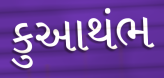
કુઆથંભ